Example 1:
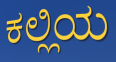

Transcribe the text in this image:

ಕಲ್ಲಿಯ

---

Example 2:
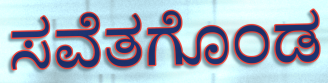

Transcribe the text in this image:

ಸವೆತಗೊಂಡ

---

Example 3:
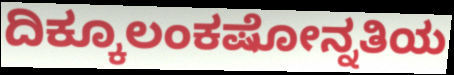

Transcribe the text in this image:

ದಿಕ್ಕೂಲಂಕಷೋನ್ನತಿಯ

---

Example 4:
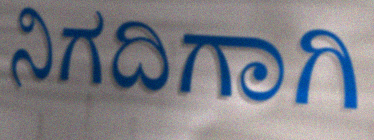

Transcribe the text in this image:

ನಿಗದಿಗಾಗಿ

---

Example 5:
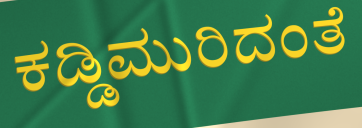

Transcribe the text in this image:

ಕಡ್ಡಿಮುರಿದಂತೆ